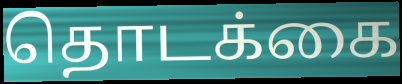
தொடக்கை